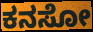
ಕನಸೋ